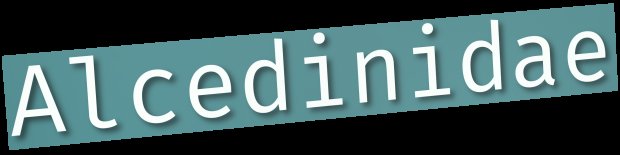
Alcedinidae